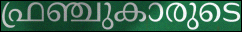
ഫ്രഞ്ചുകാരുടെ